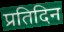
प्रतिदिन